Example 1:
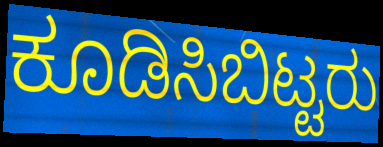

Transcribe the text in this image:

ಕೂಡಿಸಿಬಿಟ್ಟರು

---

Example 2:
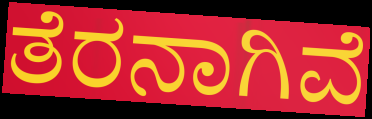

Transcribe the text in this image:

ತೆರನಾಗಿವೆ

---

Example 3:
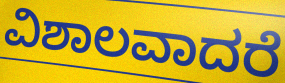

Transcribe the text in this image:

ವಿಶಾಲವಾದರೆ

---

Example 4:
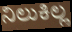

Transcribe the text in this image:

ನಿಲುಕಿಲ್ಲ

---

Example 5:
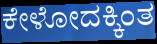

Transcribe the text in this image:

ಕೇಳೋದಕ್ಕಿಂತ